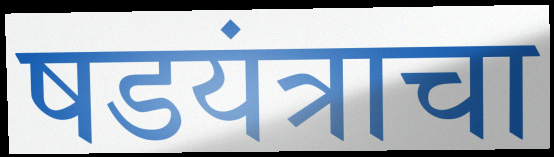
षडयंत्राचा